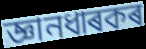
জ্ঞানধাৰকৰ